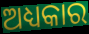
ଅଧ୍ଯକାର